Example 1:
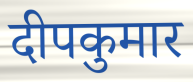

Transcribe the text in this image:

दीपकुमार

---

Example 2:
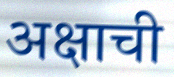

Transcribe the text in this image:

अक्षाची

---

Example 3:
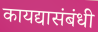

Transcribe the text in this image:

कायद्यासंबंधी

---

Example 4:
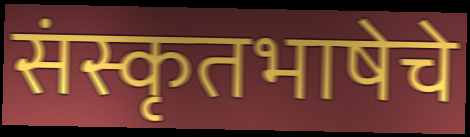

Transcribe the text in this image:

संस्कृतभाषेचे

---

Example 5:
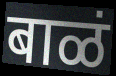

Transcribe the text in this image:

बाळं